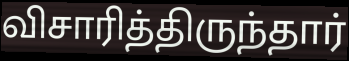
விசாரித்திருந்தார்